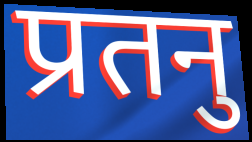
प्रतनु